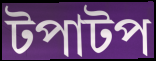
টপাটপ